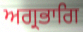
ਅਗ੍ਰਭਾਗਿ